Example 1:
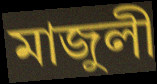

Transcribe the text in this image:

মাজুলী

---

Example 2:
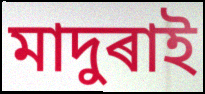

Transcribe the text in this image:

মাদুৰাই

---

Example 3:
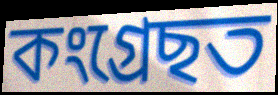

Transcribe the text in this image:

কংগ্ৰেছত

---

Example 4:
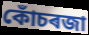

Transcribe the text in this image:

কোঁচৰজা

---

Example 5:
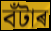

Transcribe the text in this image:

বঁটাৰ